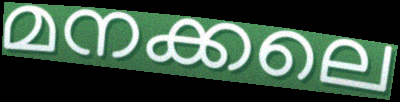
മനക്കലെ